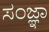
ಸಂಜ್ಞಾ